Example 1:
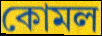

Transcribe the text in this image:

কোমল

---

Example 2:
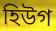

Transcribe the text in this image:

হিউগ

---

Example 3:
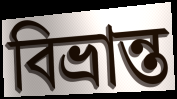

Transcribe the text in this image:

বিভ্ৰান্ত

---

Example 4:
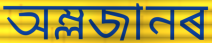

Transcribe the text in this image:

অম্লজানৰ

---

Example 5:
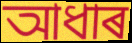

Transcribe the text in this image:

আধাৰ